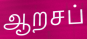
ஆறசப்